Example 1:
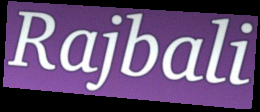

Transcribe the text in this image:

Rajbali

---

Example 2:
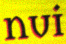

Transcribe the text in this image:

nui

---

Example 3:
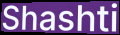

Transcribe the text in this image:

Shashti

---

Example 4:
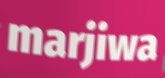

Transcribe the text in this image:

marjiwa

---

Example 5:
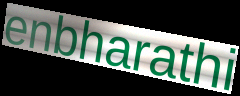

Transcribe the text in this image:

enbharathi